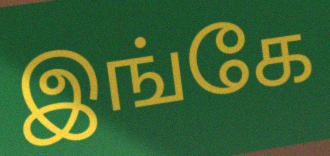
இங்கே